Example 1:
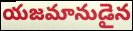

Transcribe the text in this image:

యజమానుడైన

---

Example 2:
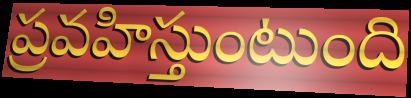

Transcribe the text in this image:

ప్రవహిస్తుంటుంది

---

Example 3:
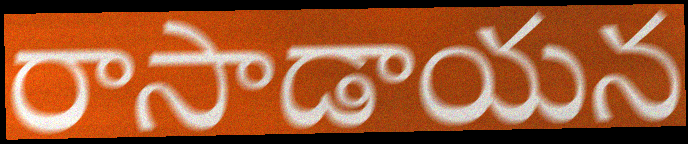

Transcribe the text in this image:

రాసాడాయన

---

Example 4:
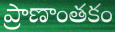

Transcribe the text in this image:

ప్రాణాంతకం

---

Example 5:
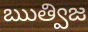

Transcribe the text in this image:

ఋత్విజ